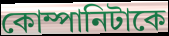
কোম্পানিটাকে